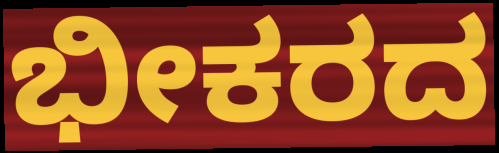
ಭೀಕರದ